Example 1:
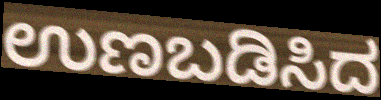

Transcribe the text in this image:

ಉಣಬಡಿಸಿದ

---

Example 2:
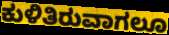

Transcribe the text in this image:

ಕುಳಿತಿರುವಾಗಲೂ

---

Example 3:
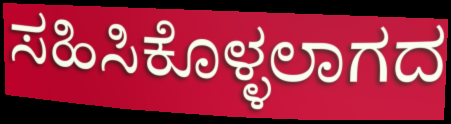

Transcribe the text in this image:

ಸಹಿಸಿಕೊಳ್ಳಲಾಗದ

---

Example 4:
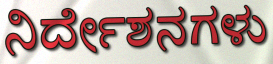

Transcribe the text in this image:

ನಿರ್ದೇಶನಗಳು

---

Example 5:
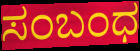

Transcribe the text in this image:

ಸಂಬಂಧ